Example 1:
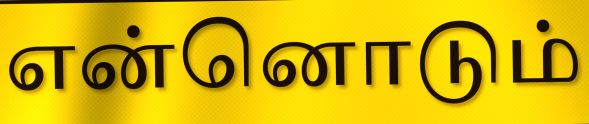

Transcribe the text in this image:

என்னொடும்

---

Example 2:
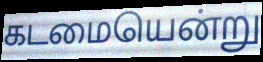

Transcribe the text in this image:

கடமையென்று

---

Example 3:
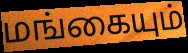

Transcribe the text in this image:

மங்கையும்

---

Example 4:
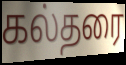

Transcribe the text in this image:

கல்தரை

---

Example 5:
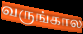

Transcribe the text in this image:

வருங்கால